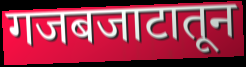
गजबजाटातून